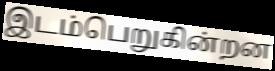
இடம்பெறுகின்றன